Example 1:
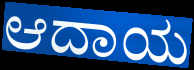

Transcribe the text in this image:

ಆದಾಯ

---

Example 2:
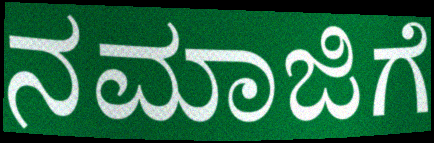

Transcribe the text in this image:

ನಮಾಜಿಗೆ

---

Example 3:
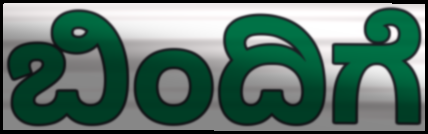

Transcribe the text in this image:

ಬಿಂದಿಗೆ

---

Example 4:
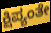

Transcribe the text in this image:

ಕ್ಷಿಪ್ಯಂತೇ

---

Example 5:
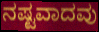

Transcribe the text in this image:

ನಷ್ಟವಾದವು